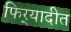
फिर्यादीत